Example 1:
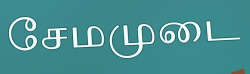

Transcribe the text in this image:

சேமமுடை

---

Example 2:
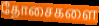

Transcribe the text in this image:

தோசைகளை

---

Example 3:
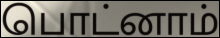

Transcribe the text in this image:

பொட்னாம்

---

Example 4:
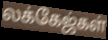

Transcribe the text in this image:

லக்கேஜ்கள்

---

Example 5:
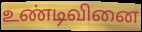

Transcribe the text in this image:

உண்டிவினை